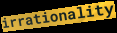
irrationality